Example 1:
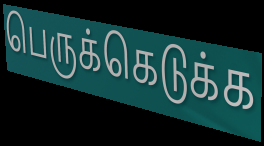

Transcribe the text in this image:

பெருக்கெடுக்க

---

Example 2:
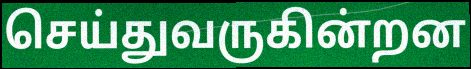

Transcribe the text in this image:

செய்துவருகின்றன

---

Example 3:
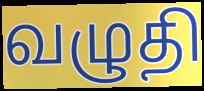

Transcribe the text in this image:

வழுதி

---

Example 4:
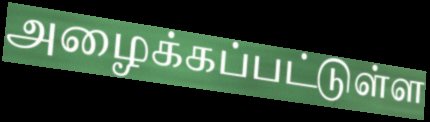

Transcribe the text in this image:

அழைக்கப்பட்டுள்ள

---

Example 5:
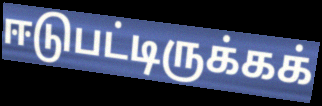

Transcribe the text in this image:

ஈடுபட்டிருக்கக்